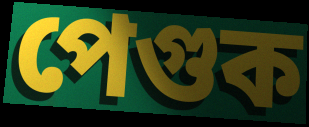
পেগুক